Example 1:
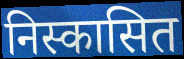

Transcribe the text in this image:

निस्कासित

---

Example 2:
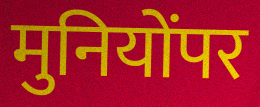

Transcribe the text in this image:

मुनियोंपर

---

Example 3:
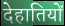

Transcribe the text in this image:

देहातियों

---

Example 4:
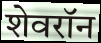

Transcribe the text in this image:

शेवरॉन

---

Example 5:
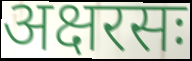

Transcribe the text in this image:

अक्षरसः